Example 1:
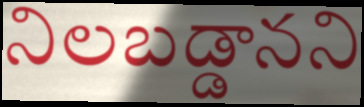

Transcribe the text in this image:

నిలబడ్డానని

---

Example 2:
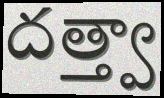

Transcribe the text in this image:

దత్త్వా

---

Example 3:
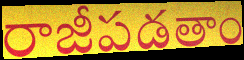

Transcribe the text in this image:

రాజీపడతాం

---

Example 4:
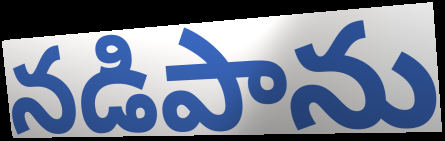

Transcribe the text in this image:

నడిపాను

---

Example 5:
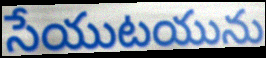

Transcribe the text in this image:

సేయుటయును